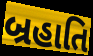
બ્રહાતિ